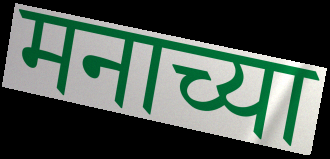
मनाच्या